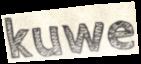
kuwe